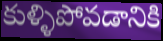
కుళ్ళిపోవడానికి